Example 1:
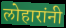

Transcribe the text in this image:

लोहारांनी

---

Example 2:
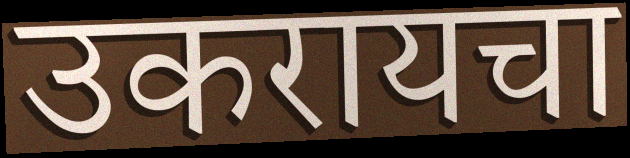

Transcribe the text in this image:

उकरायचा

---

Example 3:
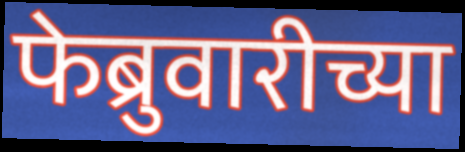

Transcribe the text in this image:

फेब्रुवारीच्या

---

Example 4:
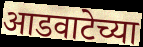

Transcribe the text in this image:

आडवाटेच्या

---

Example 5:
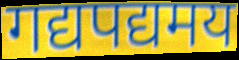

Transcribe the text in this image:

गद्यपद्यमय